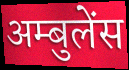
अम्बुलेंस